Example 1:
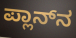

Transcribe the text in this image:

ಪ್ಲಾನ್‌ನ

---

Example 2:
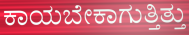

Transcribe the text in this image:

ಕಾಯಬೇಕಾಗುತ್ತಿತ್ತು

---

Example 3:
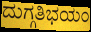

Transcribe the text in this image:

ದುಗ್ಗತಿಭಯಂ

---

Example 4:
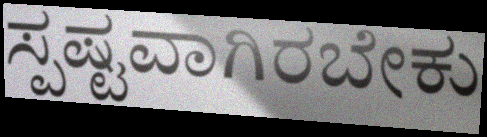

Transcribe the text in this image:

ಸ್ಪಷ್ಟವಾಗಿರಬೇಕು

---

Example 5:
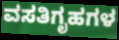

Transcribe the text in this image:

ವಸತಿಗೃಹಗಳ